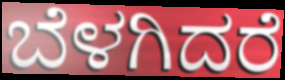
ಬೆಳಗಿದರೆ